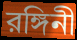
রঙ্গিনী